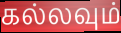
கல்லவும்